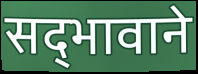
सद्‌भावाने